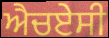
ਐਚਏਸੀ